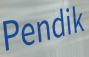
Pendik